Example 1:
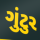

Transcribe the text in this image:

ગુંટુર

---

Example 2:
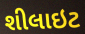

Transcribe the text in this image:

શીલાઇટ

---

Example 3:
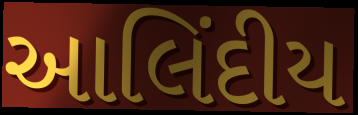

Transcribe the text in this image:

આલિંદીય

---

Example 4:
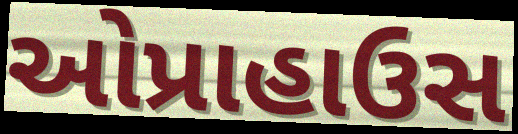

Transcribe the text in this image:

ઓપ્રાહાઉસ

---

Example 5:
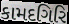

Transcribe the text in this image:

કામદગિરિ